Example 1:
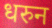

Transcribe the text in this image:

धरुन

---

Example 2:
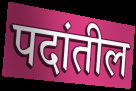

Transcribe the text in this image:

पदांतील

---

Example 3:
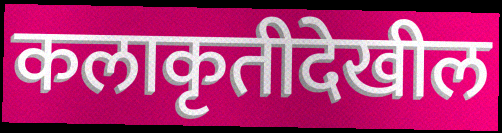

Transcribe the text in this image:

कलाकृतीदेखील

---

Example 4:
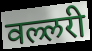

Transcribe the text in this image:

वल्लरी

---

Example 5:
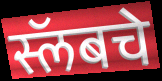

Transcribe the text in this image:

स्लॅबचे